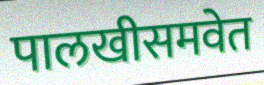
पालखीसमवेत